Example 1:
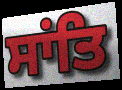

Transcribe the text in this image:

ਸਾਂਤਿ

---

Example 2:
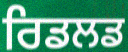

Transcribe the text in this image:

ਰਿਡਲਡ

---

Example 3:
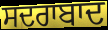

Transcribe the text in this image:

ਸਦਰਾਬਾਦ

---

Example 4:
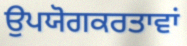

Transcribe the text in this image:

ਉਪਯੋਗਕਰਤਾਵਾਂ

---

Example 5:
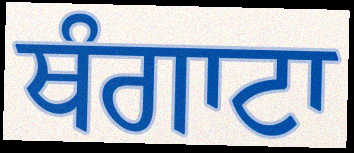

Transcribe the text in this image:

ਥੰਗਾਟਾ